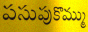
పసుపుకొమ్ము